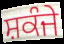
ਸ਼ਕੰਜੇ